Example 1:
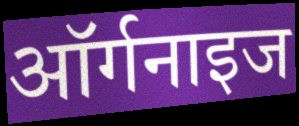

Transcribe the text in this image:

ऑर्गनाइज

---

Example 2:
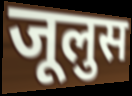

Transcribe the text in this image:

जूलुस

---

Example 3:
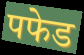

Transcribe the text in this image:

पफेड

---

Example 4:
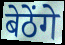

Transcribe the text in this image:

बेठेंगे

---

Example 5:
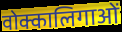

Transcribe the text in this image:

वोक्कालिगाओं